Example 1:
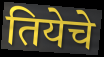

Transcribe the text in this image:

तियेचे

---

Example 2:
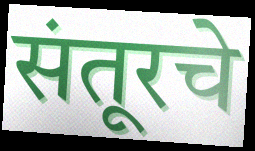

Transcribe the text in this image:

संतूरचे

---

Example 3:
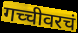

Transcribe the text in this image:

गच्चीवरचं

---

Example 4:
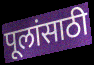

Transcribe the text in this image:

पूलांसाठी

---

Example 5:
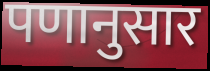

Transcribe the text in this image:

पणानुसार